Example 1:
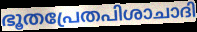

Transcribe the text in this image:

ഭൂതപ്രേതപിശാചാദി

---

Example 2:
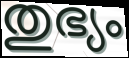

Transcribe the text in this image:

തുഭ്യം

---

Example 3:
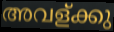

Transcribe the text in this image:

അവള്ക്കു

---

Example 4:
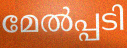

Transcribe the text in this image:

മേൽപ്പടി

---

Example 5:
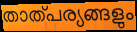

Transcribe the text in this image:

താത്പര്യങ്ങളും